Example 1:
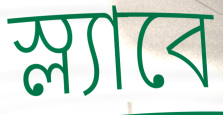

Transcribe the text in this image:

স্ল্যাবে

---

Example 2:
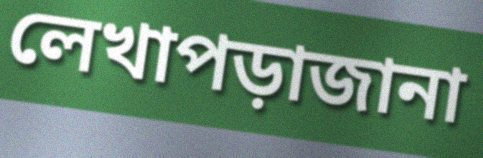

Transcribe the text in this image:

লেখাপড়াজানা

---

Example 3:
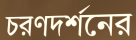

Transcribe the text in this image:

চরণদর্শনের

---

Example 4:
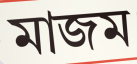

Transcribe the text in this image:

মাজম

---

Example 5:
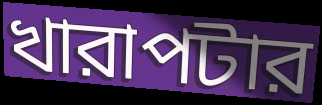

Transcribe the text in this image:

খারাপটার